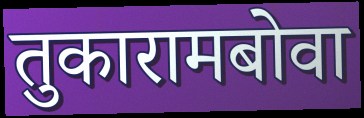
तुकारामबोवा